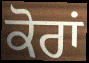
ਕੋਰਾਂ